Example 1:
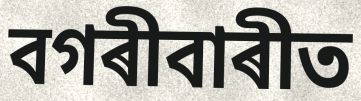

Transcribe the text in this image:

বগৰীবাৰীত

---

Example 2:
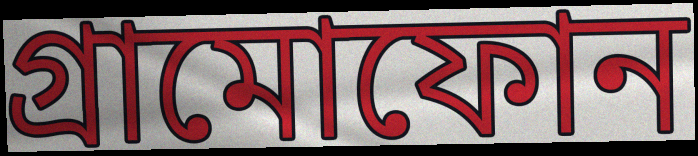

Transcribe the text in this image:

গ্ৰামোফোন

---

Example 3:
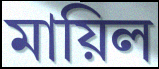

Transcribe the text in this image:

মায়িল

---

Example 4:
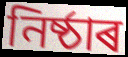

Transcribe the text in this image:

নিষ্ঠাৰ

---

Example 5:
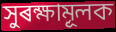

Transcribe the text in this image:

সুৰক্ষামূলক